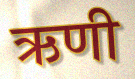
ऋणी